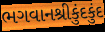
ભગવાનશ્રીકુંદકુંદ